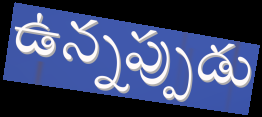
ఉన్నప్పుడు